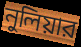
নুলিয়ার